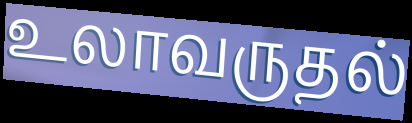
உலாவருதல்